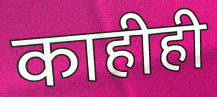
काहीही